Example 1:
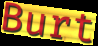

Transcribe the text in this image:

Burt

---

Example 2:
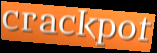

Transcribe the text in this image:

crackpot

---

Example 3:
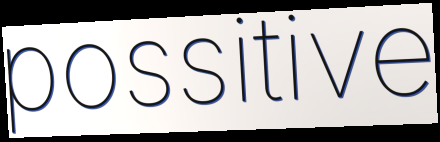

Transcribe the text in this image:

possitive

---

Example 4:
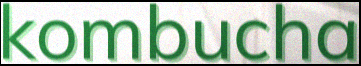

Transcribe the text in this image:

kombucha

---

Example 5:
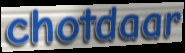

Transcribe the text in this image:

chotdaar